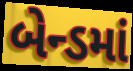
બેન્ડમાં